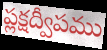
ప్లక్షద్వీపము